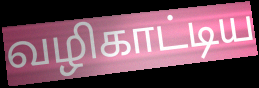
வழிகாட்டிய